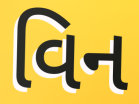
વિન